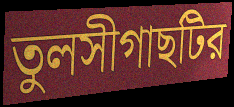
তুলসীগাছটির